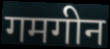
गमगीन